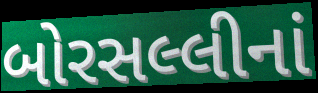
બોરસલ્લીનાં